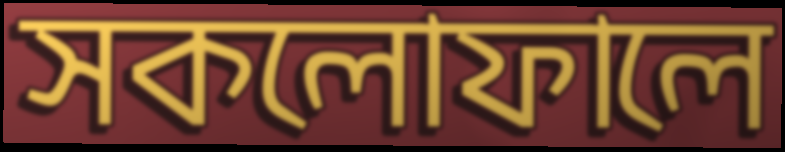
সকলোফালে